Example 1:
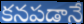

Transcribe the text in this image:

కనపడానే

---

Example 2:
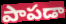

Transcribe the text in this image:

పాపడా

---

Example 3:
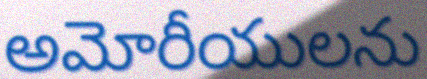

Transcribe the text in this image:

అమోరీయులను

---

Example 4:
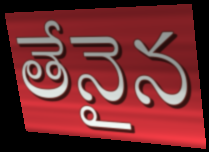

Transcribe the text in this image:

తేనైన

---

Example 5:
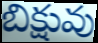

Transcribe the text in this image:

బిక్షువు